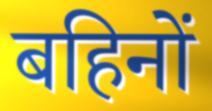
बहिनों